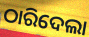
ଠାରିଦେଲା